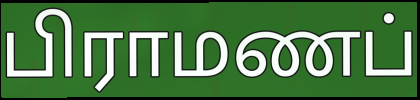
பிராமணப்